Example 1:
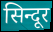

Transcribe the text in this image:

सिन्दूर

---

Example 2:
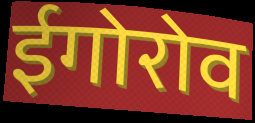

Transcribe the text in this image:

ईगोरोव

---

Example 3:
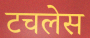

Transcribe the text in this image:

टचलेस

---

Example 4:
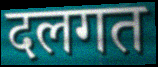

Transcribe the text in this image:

दलगत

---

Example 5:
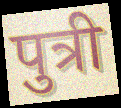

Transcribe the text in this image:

पुत्री